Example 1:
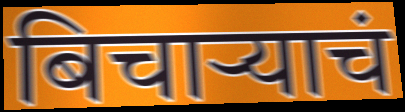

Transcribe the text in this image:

बिचाऱ्याचं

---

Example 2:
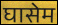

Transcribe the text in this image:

घासेम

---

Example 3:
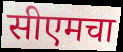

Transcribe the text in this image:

सीएमचा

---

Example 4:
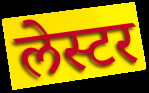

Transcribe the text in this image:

लेस्टर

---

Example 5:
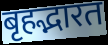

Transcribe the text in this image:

बृहद्भारत